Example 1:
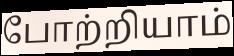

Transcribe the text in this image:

போற்றியாம்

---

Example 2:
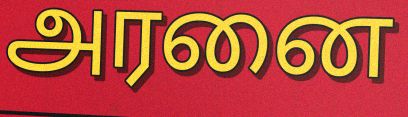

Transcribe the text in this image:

அரனை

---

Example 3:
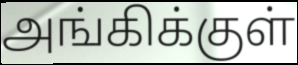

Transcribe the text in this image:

அங்கிக்குள்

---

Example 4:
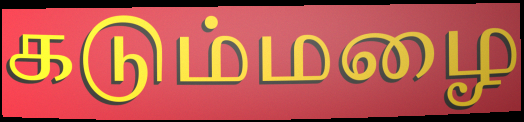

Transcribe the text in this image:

கடும்மழை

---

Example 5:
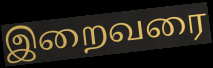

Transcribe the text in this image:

இறைவரை